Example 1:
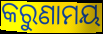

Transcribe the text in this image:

କରୁଣାମୟ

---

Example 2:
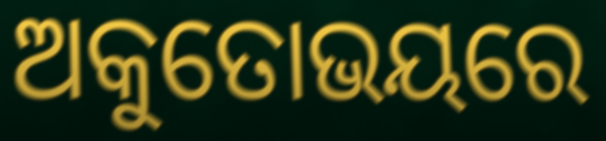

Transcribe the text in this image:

ଅକୁତୋଭୟରେ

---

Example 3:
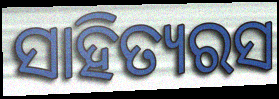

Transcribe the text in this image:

ସାହିତ୍ୟରସ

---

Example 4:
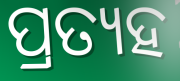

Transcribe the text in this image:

ପ୍ରତ୍ୟହ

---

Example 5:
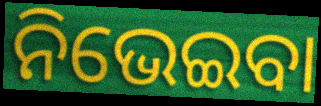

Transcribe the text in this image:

ନିଭେଇବା